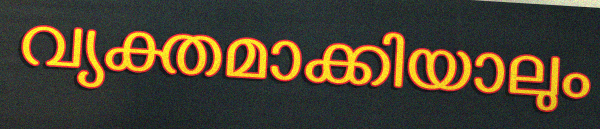
വ്യക്തമാക്കിയാലും